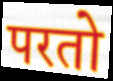
परतो